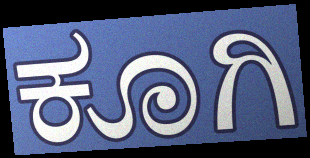
ಕೂಗಿ